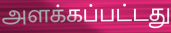
அளக்கப்பட்டது